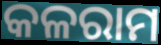
କଳରାମ